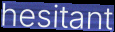
hesitant